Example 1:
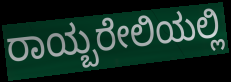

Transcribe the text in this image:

ರಾಯ್ಬರೇಲಿಯಲ್ಲಿ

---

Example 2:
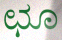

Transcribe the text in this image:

ಛೂ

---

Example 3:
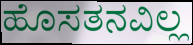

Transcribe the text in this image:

ಹೊಸತನವಿಲ್ಲ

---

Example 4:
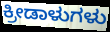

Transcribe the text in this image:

ಕ್ರೀಡಾಳುಗಳು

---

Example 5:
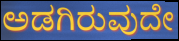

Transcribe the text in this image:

ಅಡಗಿರುವುದೇ